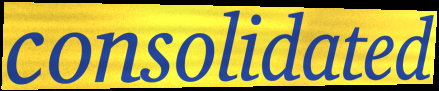
consolidated